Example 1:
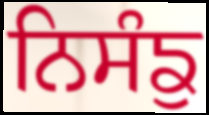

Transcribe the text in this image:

ਨਿਸੰਙੁ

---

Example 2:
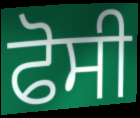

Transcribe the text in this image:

ਫੋਸੀ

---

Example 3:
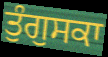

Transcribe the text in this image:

ਤੁੰਗੁਸਕਾ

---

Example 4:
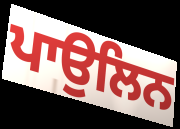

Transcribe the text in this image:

ਪਾਉਲਿਨ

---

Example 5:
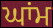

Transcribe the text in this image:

ਘਾਂਮ